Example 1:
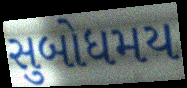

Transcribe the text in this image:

સુબોધમય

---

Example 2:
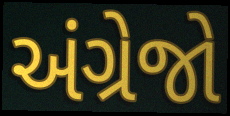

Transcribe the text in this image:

અંગ્રેજો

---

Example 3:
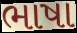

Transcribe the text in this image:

ભાષા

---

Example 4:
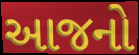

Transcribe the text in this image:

આજનો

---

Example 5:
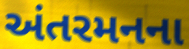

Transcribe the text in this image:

અંતરમનના